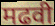
मढवी